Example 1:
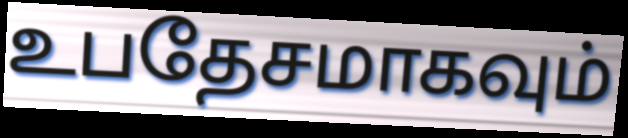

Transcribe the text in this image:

உபதேசமாகவும்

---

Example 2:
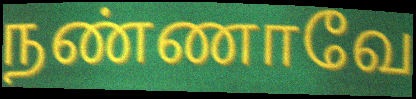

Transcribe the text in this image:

நண்ணாவே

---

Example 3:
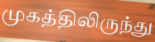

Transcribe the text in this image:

முகத்திலிருந்து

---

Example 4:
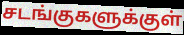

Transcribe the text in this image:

சடங்குகளுக்குள்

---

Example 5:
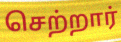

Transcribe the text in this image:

செற்றார்